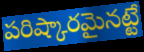
పరిష్కారమైనట్టే